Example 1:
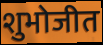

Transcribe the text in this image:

शुभोजीत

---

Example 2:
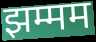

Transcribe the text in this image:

झम्मम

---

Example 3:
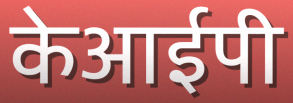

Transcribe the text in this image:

केआईपी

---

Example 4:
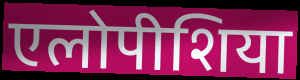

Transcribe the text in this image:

एलोपीशिया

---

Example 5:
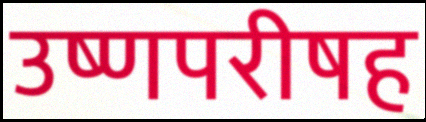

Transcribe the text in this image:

उष्णपरीषह